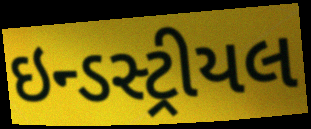
ઇન્ડસ્ટ્રીયલ